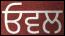
ਓਵਲ